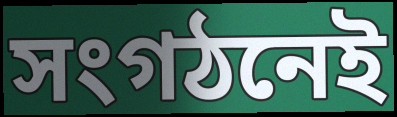
সংগঠনেই